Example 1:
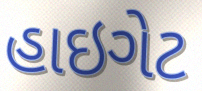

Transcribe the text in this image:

હાઇગેટ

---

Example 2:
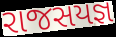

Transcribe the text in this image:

રાજસયજ્ઞ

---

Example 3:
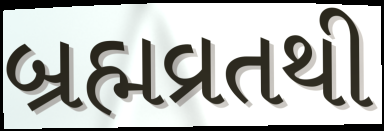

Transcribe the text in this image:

બ્રહ્મવ્રતથી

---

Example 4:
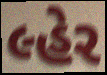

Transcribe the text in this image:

લ્હેર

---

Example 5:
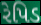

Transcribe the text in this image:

રેપિડ